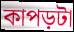
কাপড়টা